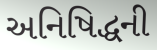
અનિષિદ્ધની